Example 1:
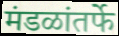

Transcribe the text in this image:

मंडळांतर्फे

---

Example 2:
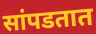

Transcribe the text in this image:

सांपडतात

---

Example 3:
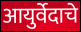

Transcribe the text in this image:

आयुर्वेदाचे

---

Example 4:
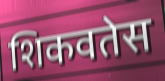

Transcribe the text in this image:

शिकवतेस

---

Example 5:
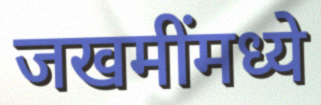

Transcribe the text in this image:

जखमींमध्ये